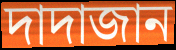
দাদাজান